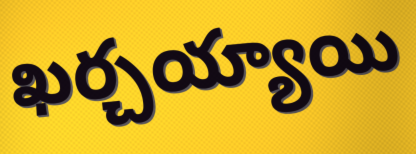
ఖర్చయ్యాయి